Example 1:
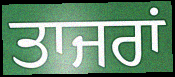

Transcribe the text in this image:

ਤਾਜਰਾਂ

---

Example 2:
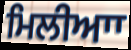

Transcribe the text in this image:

ਮਿਲੀਆਾ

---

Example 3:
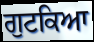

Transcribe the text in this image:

ਗੁਟਕਿਆ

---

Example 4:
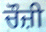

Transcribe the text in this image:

ਚੌਜ਼ੀ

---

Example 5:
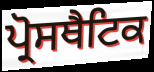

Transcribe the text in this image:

ਪ੍ਰੋਸਥੈਟਿਕ